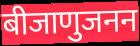
बीजाणुजनन